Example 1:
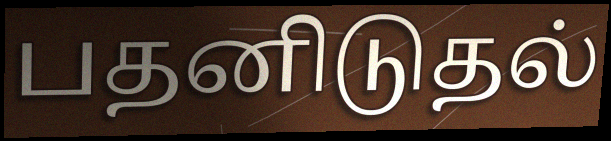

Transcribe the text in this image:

பதனிடுதல்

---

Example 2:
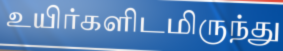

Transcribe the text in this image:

உயிர்களிடமிருந்து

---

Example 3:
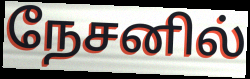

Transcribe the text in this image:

நேசனில்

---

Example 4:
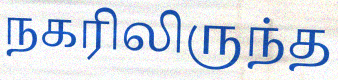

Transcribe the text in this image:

நகரிலிருந்த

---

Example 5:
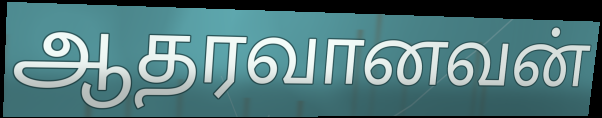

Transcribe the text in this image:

ஆதரவானவன்